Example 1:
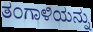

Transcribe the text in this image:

ತಂಗಾಳಿಯನ್ನು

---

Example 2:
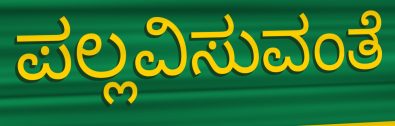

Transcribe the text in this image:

ಪಲ್ಲವಿಸುವಂತೆ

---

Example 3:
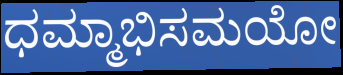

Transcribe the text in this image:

ಧಮ್ಮಾಭಿಸಮಯೋ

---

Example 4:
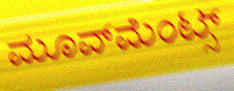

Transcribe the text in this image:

ಮೂವ್‍ಮೆಂಟ್ಸ್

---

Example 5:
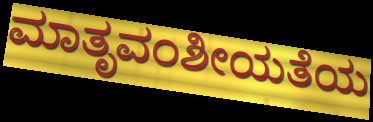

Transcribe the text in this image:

ಮಾತೃವಂಶೀಯತೆಯ